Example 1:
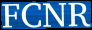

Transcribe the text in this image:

FCNR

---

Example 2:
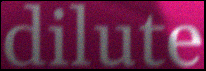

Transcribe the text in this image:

dilute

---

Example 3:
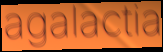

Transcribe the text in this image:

agalactia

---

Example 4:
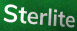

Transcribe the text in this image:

Sterlite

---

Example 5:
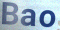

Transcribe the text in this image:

Bao